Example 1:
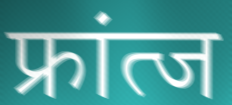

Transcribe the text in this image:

फ्रांत्ज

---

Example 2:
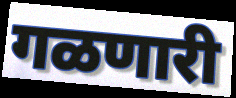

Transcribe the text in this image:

गळणारी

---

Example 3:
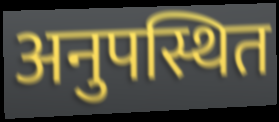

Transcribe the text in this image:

अनुपस्थित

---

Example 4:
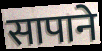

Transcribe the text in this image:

सापाने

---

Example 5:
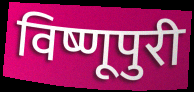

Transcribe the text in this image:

विष्णूपुरी